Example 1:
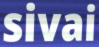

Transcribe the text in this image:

sivai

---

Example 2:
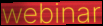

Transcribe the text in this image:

webinar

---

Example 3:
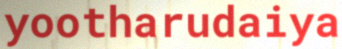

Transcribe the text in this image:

yootharudaiya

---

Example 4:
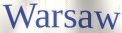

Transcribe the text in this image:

Warsaw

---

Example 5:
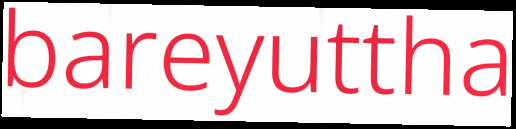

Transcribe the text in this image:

bareyuttha